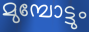
മുമ്പോട്ടും